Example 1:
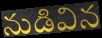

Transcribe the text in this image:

నుడివిన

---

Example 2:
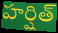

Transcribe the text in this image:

హర్షిత్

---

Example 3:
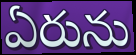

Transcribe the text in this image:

ఏరును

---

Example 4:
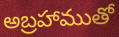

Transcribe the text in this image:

అబ్రహాముతో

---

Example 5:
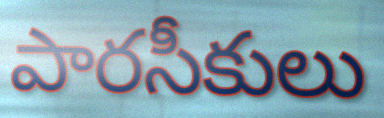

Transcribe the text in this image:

పారసీకులు